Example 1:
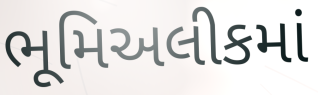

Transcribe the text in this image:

ભૂમિઅલીકમાં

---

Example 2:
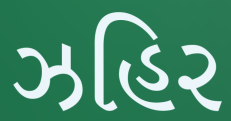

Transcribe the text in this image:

ઝહિર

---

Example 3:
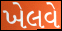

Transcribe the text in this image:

ખેલવે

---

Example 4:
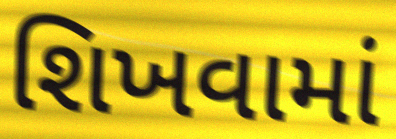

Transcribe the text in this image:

શિખવામાં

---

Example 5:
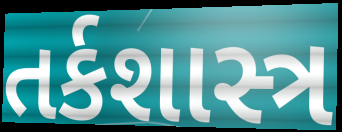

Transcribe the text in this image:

તર્કશાસ્ત્ર